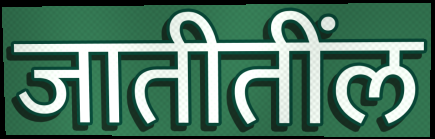
जातीतींल